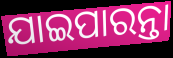
ଯାଇପାରନ୍ତା